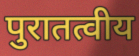
पुरातत्वीय